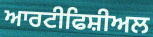
ਆਰਟੀਫਿਸ਼ੀਅਲ